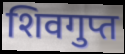
शिवगुप्त